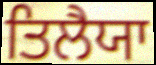
ਤਿਲੈਯਾ